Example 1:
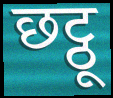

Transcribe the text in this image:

छट्ठू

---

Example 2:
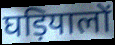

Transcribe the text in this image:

घड़ियालों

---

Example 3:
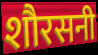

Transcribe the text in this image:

शौरसनी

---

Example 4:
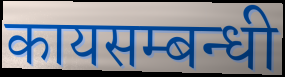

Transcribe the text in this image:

कायसम्बन्धी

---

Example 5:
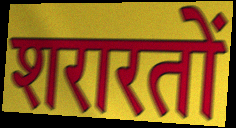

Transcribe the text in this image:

शरारतों